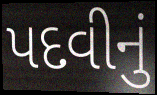
પદવીનું